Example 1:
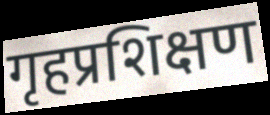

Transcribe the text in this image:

गृहप्रशिक्षण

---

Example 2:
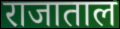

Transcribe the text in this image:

राजाताल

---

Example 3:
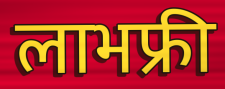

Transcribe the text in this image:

लाभफ्री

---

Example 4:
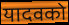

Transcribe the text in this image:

यादवको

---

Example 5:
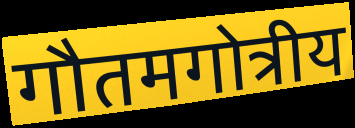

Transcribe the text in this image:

गौतमगोत्रीय